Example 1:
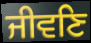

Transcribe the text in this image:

ਜੀਵਣਿ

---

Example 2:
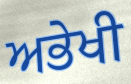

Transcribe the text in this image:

ਅਭੇਖੀ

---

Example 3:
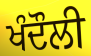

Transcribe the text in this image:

ਖੰਦੌਲੀ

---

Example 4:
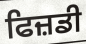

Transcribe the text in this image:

ਫਿਜ਼ਡੀ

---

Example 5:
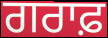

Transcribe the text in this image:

ਗਰਾਫ਼